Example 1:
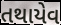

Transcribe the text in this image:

તથાયેવ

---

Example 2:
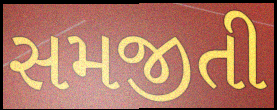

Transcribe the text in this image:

સમજીતી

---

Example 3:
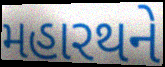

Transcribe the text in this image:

મહારથને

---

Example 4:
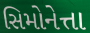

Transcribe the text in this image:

સિમોનેત્તા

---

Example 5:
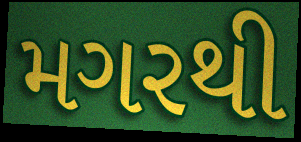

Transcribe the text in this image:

મગરથી